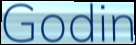
Godin